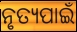
ନୃତ୍ୟପାଇଁ